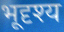
भूदृश्य